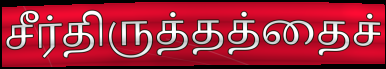
சீர்திருத்தத்தைச்